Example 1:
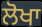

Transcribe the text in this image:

ਲੋਖਾ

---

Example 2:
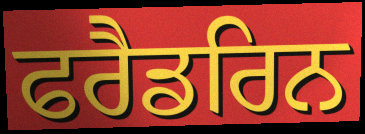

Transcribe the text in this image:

ਫਰੈਡਰਿਨ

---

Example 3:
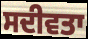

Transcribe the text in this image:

ਸਦੀਵਤਾ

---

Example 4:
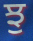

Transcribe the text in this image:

ਝੁ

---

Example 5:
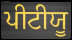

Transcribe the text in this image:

ਪੀਟੀਯੂ